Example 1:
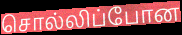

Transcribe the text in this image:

சொல்லிப்போன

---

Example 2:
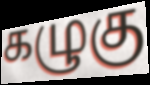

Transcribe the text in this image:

கழுகு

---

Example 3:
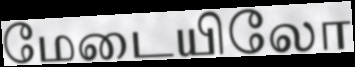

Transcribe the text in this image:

மேடையிலோ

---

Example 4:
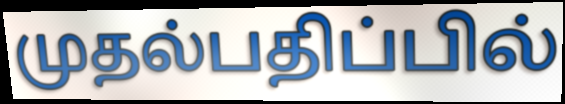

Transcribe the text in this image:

முதல்பதிப்பில்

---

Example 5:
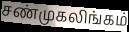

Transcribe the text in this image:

சண்முகலிங்கம்